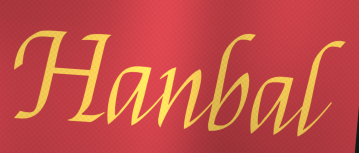
Hanbal